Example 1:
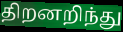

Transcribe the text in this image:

திறனறிந்து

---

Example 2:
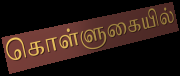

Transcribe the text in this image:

கொள்ளுகையில்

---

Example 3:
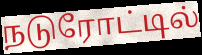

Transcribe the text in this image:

நடுரோட்டில்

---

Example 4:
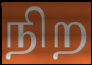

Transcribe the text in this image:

நிற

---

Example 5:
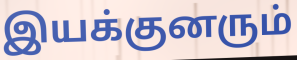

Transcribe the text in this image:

இயக்குனரும்